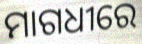
ମାଗଧୀରେ